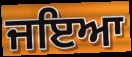
ਜਇਆ